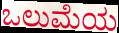
ಒಲುಮೆಯ